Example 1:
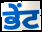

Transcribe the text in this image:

ਭੇਂਟ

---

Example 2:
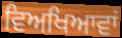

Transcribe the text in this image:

ਵਿਅਖਿਆਵਾਂ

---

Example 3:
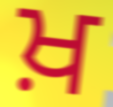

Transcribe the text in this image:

ਖ਼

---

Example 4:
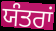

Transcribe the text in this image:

ਯੰਤਰਾਂ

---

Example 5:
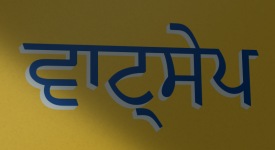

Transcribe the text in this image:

ਵਾਟ੍ਸੇਪ